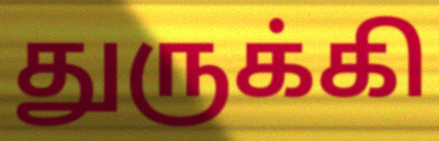
துருக்கி